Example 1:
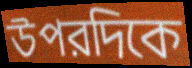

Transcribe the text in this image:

উপরদিকে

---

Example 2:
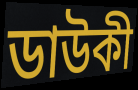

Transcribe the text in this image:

ডাউকী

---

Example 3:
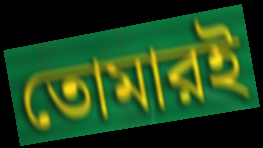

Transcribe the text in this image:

তোমারই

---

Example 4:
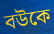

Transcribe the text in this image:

বউকে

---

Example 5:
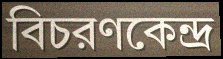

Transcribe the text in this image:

বিচরণকেন্দ্র